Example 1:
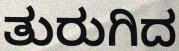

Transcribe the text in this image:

ತುರುಗಿದ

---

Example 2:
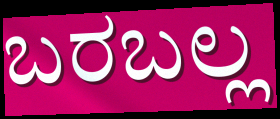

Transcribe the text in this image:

ಬರಬಲ್ಲ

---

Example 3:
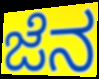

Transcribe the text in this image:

ಜೆನ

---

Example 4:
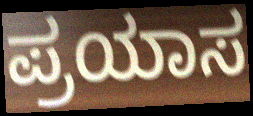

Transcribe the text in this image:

ಪ್ರಯಾಸ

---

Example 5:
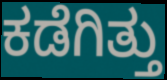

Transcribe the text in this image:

ಕಡೆಗಿತ್ತು